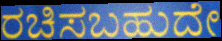
ರಚಿಸಬಹುದೇ